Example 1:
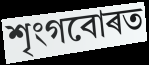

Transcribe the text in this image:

শৃংগবোৰত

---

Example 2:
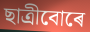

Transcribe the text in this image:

ছাত্ৰীবোৰে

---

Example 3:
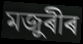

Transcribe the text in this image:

মজুৰীৰ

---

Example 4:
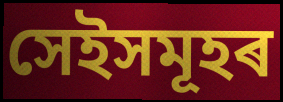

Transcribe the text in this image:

সেইসমূহৰ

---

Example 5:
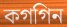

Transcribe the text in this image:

কগগিন